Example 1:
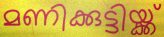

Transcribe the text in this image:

മണിക്കുട്ടിയ്ക്ക്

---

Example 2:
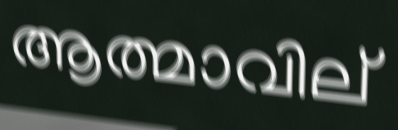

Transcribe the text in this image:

ആത്മാവില്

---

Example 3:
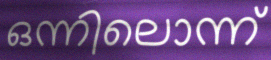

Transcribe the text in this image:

ഒന്നിലൊന്ന്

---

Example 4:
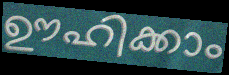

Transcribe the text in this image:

ഊഹിക്കാം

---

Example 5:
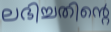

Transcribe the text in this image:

ലഭിച്ചതിന്റെ